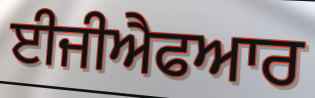
ਈਜੀਐਫਆਰ